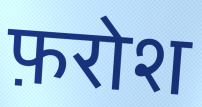
फ़रोश